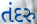
તંદરુ